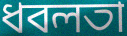
ধবলতা